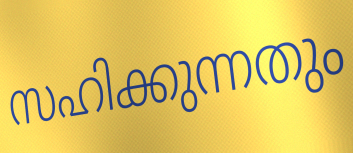
സഹിക്കുന്നതും